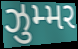
ઝુમ્મર